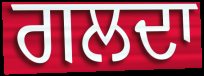
ਗਲਦਾ